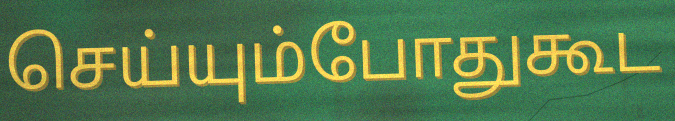
செய்யும்போதுகூட